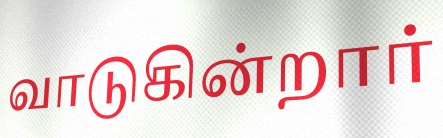
வாடுகின்றார்